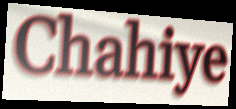
Chahiye